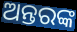
ଅନ୍ତରଙ୍କ